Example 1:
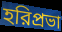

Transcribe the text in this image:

হরিপ্রভা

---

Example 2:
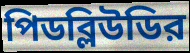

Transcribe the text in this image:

পিডব্লিউডির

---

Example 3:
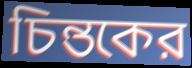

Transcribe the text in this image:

চিন্তকের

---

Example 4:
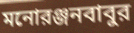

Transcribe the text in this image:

মনোরঞ্জনবাবুর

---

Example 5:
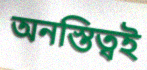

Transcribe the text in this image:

অনস্তিত্বই